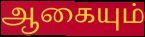
ஆகையும்